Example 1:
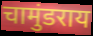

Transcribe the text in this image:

चामुंडराय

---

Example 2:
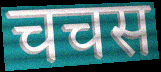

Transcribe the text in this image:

चचस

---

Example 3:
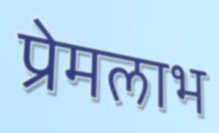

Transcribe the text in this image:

प्रेमलाभ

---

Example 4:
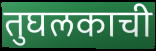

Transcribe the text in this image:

तुघलकाची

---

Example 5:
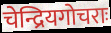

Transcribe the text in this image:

चेन्द्रियगोचराः